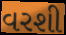
વરશી